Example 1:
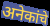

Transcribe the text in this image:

अनेकांचे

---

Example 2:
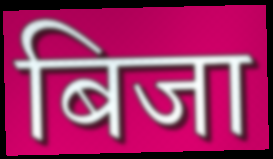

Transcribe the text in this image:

बिजा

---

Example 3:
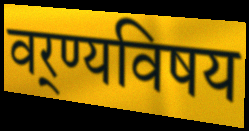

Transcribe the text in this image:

वर्ण्यविषय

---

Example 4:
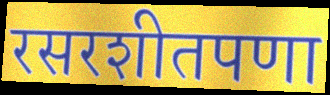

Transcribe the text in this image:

रसरशीतपणा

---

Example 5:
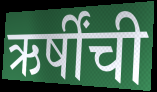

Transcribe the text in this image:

ऋर्षींची